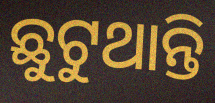
ଛୁଟୁଥାନ୍ତି